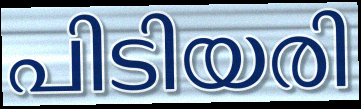
പിടിയരി